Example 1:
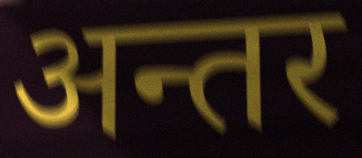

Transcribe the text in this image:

अन्तर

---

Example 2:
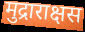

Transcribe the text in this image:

मुद्राराक्षस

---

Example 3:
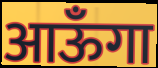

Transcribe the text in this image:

आऊँगा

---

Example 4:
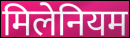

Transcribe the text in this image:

मिलेनियम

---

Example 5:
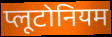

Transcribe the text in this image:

प्लूटोनियम